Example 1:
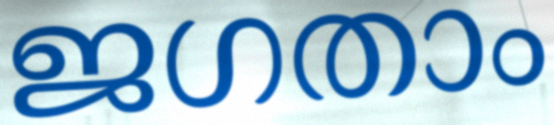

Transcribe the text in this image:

ജഗതാം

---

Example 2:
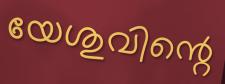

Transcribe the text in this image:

യേശുവിന്റെ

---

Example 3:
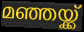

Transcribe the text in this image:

മഞ്ഞയ്ക്ക്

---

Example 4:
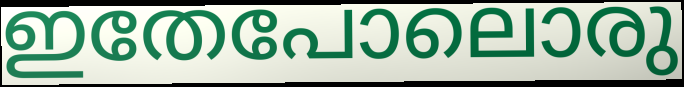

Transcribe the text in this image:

ഇതേപോലൊരു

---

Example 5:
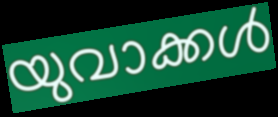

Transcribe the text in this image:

യുവാക്കൾ